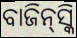
ବାଜିନ୍‌ସ୍କି